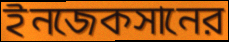
ইনজেকসানের